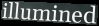
illumined